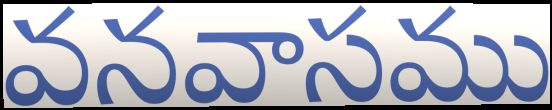
వనవాసము